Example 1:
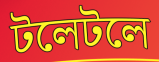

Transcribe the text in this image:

টলেটলে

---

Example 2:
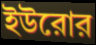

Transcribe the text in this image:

ইউরোর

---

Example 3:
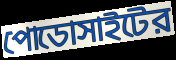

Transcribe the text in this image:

পোডোসাইটের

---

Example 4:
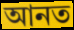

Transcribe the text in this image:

আনত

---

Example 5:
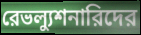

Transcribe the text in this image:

রেভল্যুশনারিদের